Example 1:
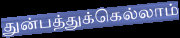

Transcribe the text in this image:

துன்பத்துக்கெல்லாம்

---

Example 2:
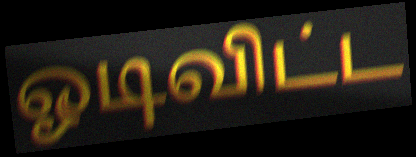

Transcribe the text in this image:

ஓடிவிட்ட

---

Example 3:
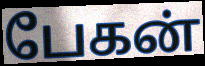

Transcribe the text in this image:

பேகன்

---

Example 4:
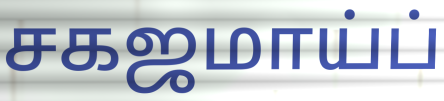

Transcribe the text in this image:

சகஜமாய்ப்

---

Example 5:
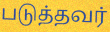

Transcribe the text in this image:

படுத்தவர்